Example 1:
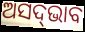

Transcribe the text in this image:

ଅସଦ୍‌ଭାବ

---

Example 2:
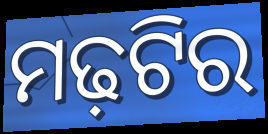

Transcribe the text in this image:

ମଢ଼ଟିର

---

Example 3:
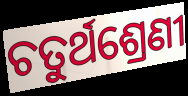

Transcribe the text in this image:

ଚତୁର୍ଥଶ୍ରେଣୀ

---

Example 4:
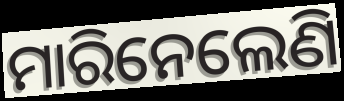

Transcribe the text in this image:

ମାରିନେଲେଣି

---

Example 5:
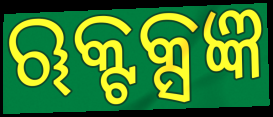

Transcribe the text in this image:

ୠକ୍ଟକ୍ସଜ୍ଞ